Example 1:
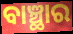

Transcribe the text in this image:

ବାଞ୍ଛାର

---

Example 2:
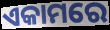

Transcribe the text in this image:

ଏକାମରେ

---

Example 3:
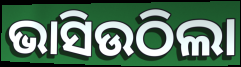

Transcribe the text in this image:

ଭାସିଉଠିଲା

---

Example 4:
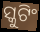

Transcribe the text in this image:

ସ୍କୁଟିଂ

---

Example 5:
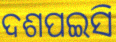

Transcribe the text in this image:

ଦଶପଇସି